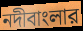
নদীবাংলার